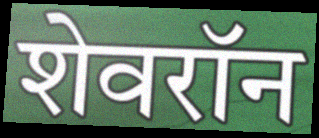
शेवरॉन